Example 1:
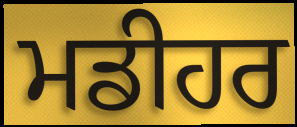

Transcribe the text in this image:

ਮਡੀਹਰ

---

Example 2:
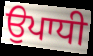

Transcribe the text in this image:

ਉਪਾਧੀ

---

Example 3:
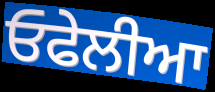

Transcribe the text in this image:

ਓਫੇਲੀਆ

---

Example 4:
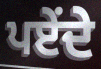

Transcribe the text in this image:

ਪਏਂਦੇ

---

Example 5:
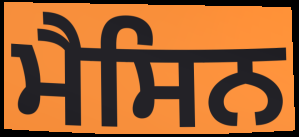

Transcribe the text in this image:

ਮੈਸਿਨ